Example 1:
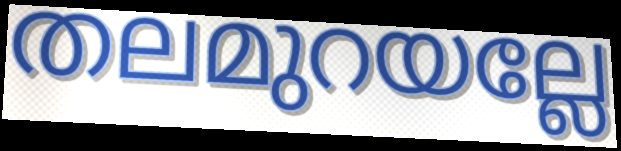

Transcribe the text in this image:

തലമുറയല്ലേ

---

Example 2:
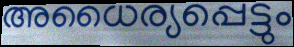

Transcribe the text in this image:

അധൈര്യപ്പെട്ടും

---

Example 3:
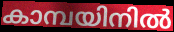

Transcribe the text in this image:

കാമ്പയിനിൽ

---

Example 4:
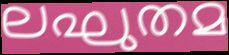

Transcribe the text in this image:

ലഘുതമ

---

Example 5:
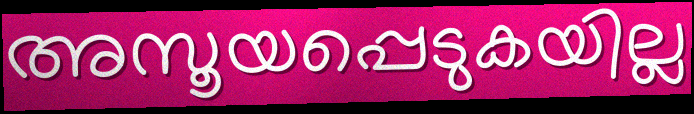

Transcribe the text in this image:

അസൂയപ്പെടുകയില്ല